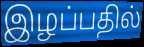
இழப்பதில்